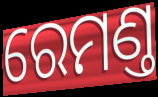
ରେମଣ୍ତ